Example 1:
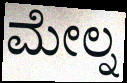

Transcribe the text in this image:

ಮೇಲ್ನ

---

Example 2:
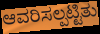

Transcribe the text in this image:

ಆವರಿಸಲ್ಪಟ್ಟಿತು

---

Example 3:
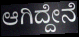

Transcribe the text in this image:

ಆಗಿದ್ದೇನೆ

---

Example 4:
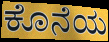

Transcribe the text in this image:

ಕೊನೆಯ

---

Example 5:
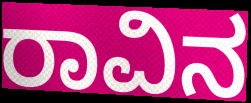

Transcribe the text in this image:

ರಾವಿನ